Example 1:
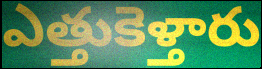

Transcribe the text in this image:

ఎత్తుకెళ్తారు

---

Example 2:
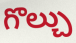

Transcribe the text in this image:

గొల్చు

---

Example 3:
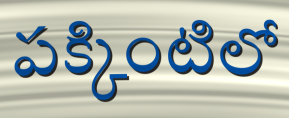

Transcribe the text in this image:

పక్కింటిలో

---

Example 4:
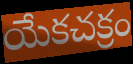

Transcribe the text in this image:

యేకచక్రం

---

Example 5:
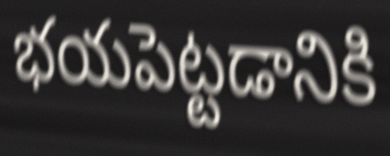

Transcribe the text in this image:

భయపెట్టడానికి